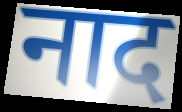
नाद